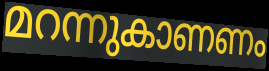
മറന്നുകാണണം